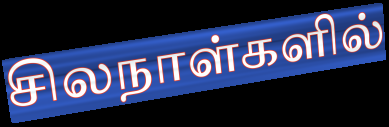
சிலநாள்களில்